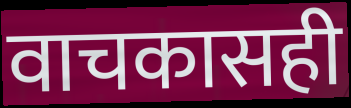
वाचकासही